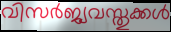
വിസർജ്യവസ്തുക്കൾ